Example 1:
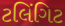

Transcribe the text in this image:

ટલિંગિટ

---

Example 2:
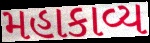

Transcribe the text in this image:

મહાકાવ્ય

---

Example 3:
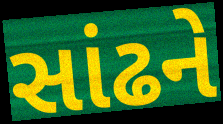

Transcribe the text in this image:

સાંઢને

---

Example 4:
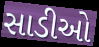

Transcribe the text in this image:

સાડીઓ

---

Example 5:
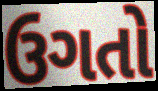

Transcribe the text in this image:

ઉગતો